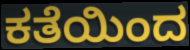
ಕತೆಯಿಂದ